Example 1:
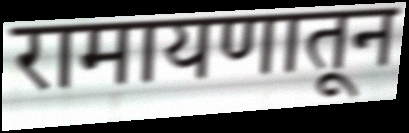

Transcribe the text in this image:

रामायणातून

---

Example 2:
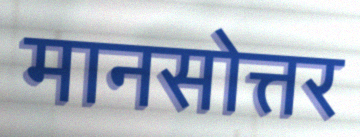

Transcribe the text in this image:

मानसोत्तर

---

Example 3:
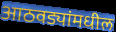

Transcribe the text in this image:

आठवड्यांमधील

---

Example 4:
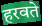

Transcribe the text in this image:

हरवते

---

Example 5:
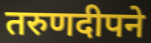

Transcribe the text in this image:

तरुणदीपने